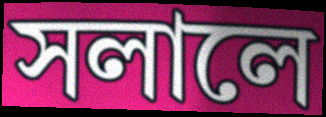
সলালে